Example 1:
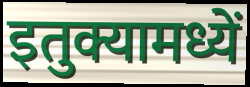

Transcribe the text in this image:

इतुक्यामध्यें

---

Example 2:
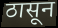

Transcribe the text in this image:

ठासून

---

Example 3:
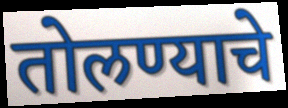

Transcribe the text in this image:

तोलण्याचे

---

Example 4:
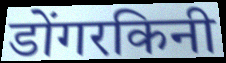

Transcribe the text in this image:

डोंगरकिनी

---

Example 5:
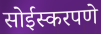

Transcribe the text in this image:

सोईस्करपणे